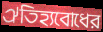
ঐতিহ্যবোধের